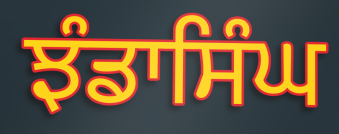
ਝੰਡਾਸਿੰਘ